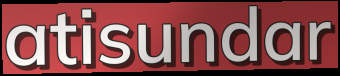
atisundar